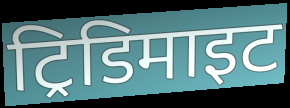
ट्रिडिमाइट